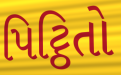
પિટ્ઠિતો